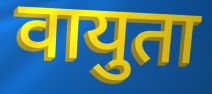
वायुता